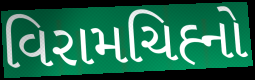
વિરામચિહ્‍નો